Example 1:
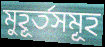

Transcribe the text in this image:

মুহূৰ্তসমূহ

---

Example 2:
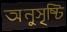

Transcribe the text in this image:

অনুসৃষ্টি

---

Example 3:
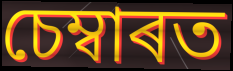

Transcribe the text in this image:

চেম্বাৰত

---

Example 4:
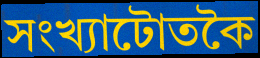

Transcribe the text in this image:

সংখ্যাটোতকৈ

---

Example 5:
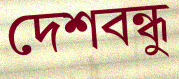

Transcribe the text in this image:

দেশবন্ধু